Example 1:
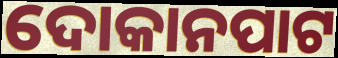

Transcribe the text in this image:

ଦୋକାନପାଟ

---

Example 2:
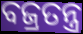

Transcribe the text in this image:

ବଜ୍ରତନ୍ତ୍ର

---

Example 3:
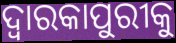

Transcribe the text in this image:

ଦ୍ୱାରକାପୁରୀକୁ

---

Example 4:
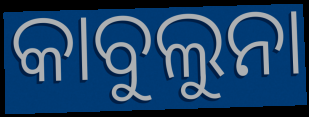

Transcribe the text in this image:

କାବୁଲୁନା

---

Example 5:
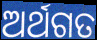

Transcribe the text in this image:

ଅର୍ଥଗତ